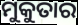
ମୁକୁତାର